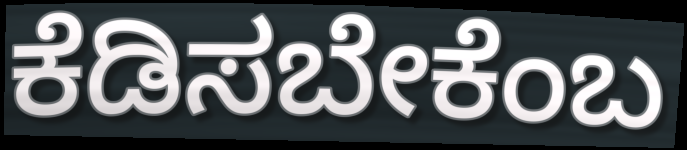
ಕೆಡಿಸಬೇಕೆಂಬ